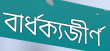
বার্ধক্যজীর্ণ